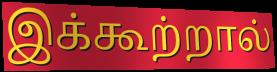
இக்கூற்றால்